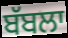
ਬੱਬਲਾ